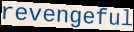
revengeful